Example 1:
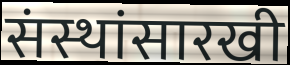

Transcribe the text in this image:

संस्थांसारखी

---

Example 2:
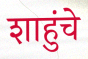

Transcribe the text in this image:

शाहुंचे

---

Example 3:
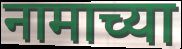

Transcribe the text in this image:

नामाच्या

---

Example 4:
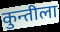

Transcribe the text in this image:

कुन्तीला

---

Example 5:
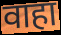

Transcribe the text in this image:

वाहा